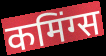
कमिंग्स